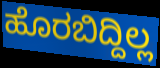
ಹೊರಬಿದ್ದಿಲ್ಲ